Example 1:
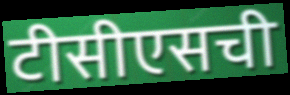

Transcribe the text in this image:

टीसीएसची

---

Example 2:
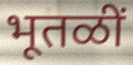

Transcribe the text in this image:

भूतळीं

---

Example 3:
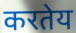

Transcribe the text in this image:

करतेय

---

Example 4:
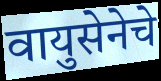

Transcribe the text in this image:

वायुसेनेचे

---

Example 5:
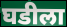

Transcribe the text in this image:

घडीला